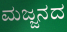
ಮಜ್ಜನದ